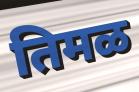
तिमळ